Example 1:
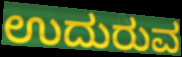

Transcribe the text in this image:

ಉದುರುವ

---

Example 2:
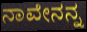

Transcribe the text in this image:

ನಾವೇನನ್ನ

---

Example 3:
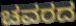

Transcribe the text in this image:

ಚವರದ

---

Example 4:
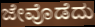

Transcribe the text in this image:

ಜೇವೊಡೆದು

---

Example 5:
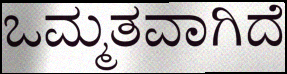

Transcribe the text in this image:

ಒಮ್ಮತವಾಗಿದೆ